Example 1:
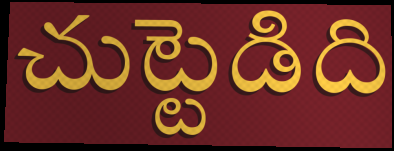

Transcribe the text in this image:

చుట్టెడిది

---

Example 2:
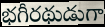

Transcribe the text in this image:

భగీరథుడుగా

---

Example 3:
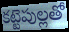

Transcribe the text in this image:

కట్టెపుల్లతో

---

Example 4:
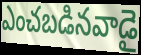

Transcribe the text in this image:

ఎంచబడినవాడై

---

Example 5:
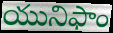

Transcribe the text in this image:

యునిఫాం